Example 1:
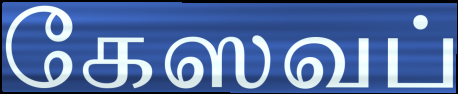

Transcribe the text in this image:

கேஸவப்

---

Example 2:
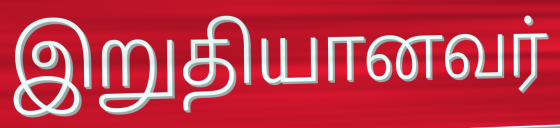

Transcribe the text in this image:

இறுதியானவர்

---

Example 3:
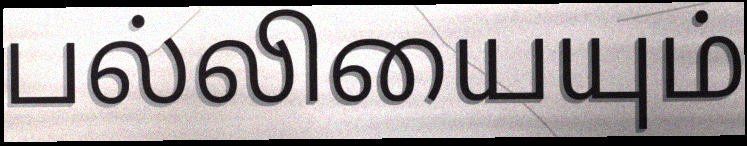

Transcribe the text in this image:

பல்லியையும்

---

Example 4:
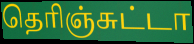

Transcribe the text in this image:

தெரிஞ்சுட்டா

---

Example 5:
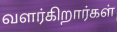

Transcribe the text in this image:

வளர்கிறார்கள்